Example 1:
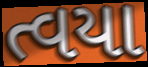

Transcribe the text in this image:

ત્વયા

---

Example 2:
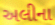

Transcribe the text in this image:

અલીના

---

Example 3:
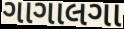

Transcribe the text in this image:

ગાગાલગા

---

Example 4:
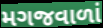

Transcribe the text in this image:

મગજવાળાં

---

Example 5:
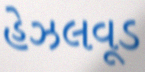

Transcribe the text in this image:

હેઝલવૂડ